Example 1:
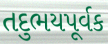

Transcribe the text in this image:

તદુભયપૂર્વક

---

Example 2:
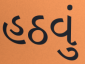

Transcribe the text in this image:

હઠવું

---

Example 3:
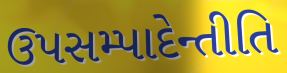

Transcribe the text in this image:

ઉપસમ્પાદેન્તીતિ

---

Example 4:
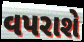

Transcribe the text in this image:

વપરાશે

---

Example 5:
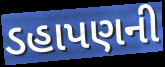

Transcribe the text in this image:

ડહાપણની